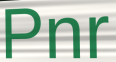
Pnr